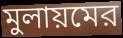
মুলায়মের